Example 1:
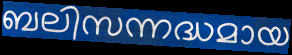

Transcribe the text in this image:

ബലിസന്നദ്ധമായ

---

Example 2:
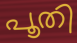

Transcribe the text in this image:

പൂതി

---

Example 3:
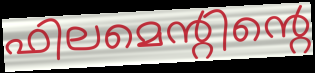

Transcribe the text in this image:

ഫിലമെന്റിന്റെ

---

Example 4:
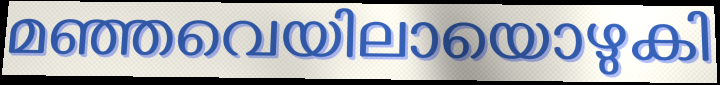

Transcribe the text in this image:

മഞ്ഞവെയിലായൊഴുകി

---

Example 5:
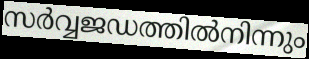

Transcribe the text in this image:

സർവ്വജഡത്തിൽനിന്നും